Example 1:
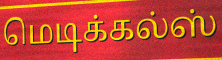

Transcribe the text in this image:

மெடிக்கல்ஸ்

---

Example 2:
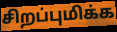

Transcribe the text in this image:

சிறப்புமிக்க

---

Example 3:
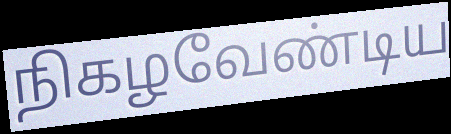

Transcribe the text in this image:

நிகழவேண்டிய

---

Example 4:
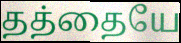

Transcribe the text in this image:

தத்தையே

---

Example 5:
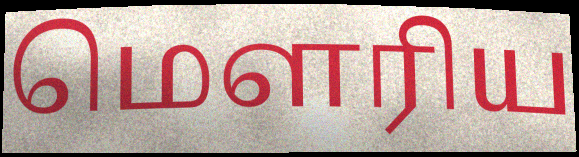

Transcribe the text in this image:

மௌரிய